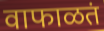
वाफाळतं